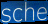
sche